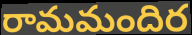
రామమందిర